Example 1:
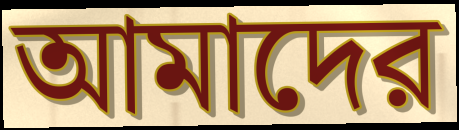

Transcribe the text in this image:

আমাদের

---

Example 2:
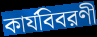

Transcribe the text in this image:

কার্যবিবরণী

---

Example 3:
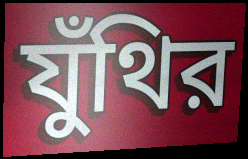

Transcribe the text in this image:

যুঁথির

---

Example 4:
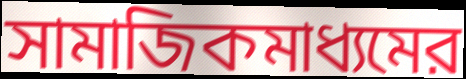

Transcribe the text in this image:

সামাজিকমাধ্যমের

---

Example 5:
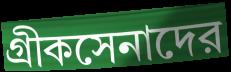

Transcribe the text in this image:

গ্রীকসেনাদের